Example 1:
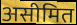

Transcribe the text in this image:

असीमित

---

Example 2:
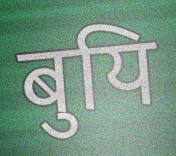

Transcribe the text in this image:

बुयि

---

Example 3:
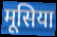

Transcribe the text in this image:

मूसिया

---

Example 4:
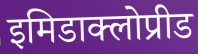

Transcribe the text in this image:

इमिडाक्लोप्रीड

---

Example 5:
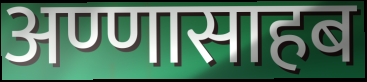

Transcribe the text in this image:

अण्णासाहब